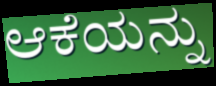
ಆಕೆಯನ್ನು